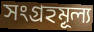
সংগ্রহমূল্য